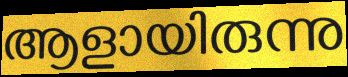
ആളായിരുന്നു